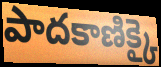
పాదకాణిక్కై